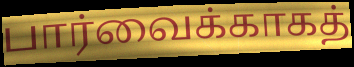
பார்வைக்காகத்